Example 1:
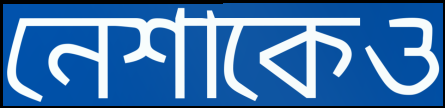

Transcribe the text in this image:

নেশাকেও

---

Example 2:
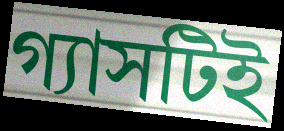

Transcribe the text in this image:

গ্যাসটিই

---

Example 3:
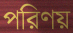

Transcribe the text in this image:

পরিণয়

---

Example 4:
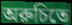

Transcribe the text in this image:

অরুচিতে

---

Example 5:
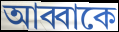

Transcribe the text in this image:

আব্বাকে